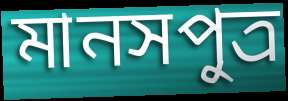
মানসপুত্ৰ